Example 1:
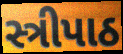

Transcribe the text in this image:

સ્ત્રીપાઠ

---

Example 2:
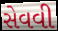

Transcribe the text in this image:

સેવવી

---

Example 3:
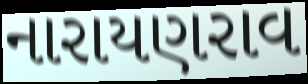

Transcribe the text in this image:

નારાયણરાવ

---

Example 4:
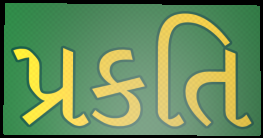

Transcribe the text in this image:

પ્રકતિ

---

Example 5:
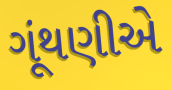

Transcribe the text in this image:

ગૂંથણીએ